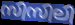
സിസിലി